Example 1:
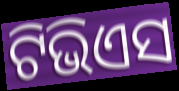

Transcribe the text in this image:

ଟିଭିଏସ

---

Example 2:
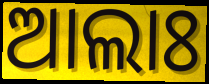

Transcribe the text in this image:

ଆଲାଃ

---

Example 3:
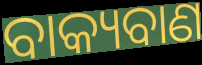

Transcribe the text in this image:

ବାକ୍ୟବାଣ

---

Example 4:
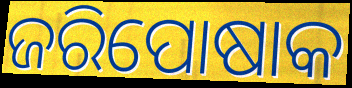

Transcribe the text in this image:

ଜରିପୋଷାକ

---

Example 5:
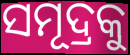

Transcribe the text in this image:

ସମୂଦ୍ରକୁ